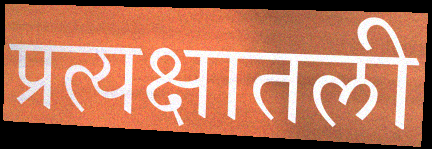
प्रत्यक्षातली